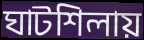
ঘাটশিলায়